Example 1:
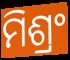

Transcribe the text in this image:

ମିଶ୍ରଂ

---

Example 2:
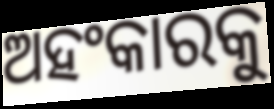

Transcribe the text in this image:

ଅହଂକାରକୁ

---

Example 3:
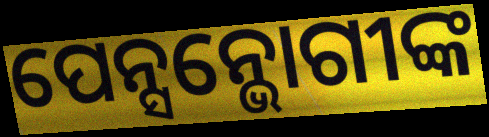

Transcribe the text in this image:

ପେନ୍ସନ୍ଭୋଗୀଙ୍କ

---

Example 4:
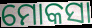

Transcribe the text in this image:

ମୋକସା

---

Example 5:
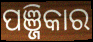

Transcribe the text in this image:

ପଞ୍ଜିକାର